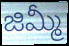
జిమ్మీ